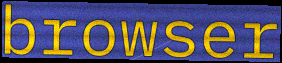
browser